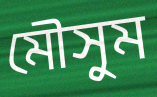
মৌসুম